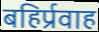
बहिर्प्रवाह